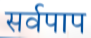
सर्वपाप